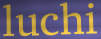
luchi